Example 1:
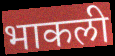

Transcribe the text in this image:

भाकली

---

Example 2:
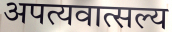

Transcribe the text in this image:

अपत्यवात्सल्य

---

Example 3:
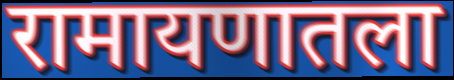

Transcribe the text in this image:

रामायणातला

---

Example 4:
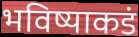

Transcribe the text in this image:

भविष्याकडं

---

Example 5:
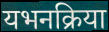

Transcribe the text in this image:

यभनक्रिया